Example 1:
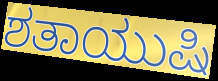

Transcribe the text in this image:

ಶತಾಯುಷಿ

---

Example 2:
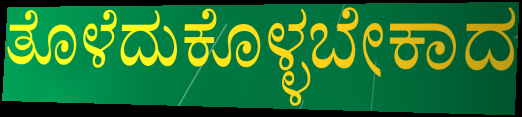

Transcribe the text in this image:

ತೊಳೆದುಕೊಳ್ಳಬೇಕಾದ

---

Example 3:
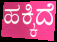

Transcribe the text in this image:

ಹಕ್ಕಿದೆ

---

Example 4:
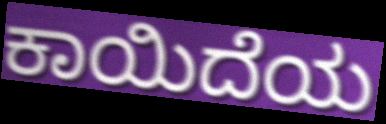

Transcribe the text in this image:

ಕಾಯಿದೆಯ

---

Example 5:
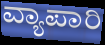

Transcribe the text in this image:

ವ್ಯಾಪಾರಿ